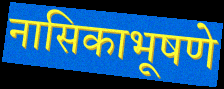
नासिकाभूषणे